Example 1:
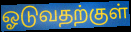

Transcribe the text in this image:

ஓடுவதற்குள்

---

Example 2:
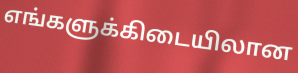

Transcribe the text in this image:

எங்களுக்கிடையிலான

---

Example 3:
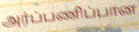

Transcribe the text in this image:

அர்ப்பணிப்பான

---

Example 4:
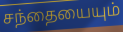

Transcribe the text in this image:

சந்தையையும்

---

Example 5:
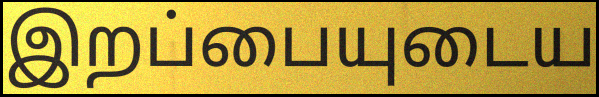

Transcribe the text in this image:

இறப்பையுடைய